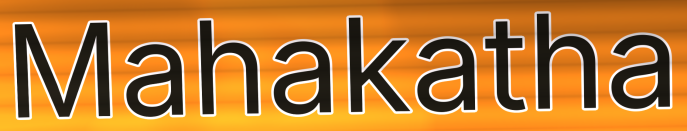
Mahakatha